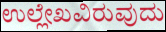
ಉಲ್ಲೇಖವಿರುವುದು